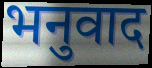
भनुवाद